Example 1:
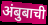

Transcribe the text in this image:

अंबुबाची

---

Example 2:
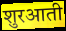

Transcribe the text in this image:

शुरआती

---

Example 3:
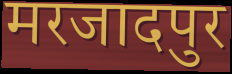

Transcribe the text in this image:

मरजादपुर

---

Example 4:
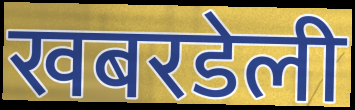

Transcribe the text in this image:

खबरडेली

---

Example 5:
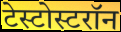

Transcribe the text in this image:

टेस्टोस्टरॉन